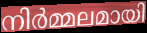
നിർമ്മലമായി